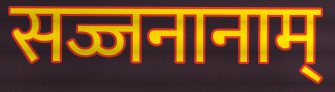
सज्जनानाम्